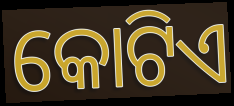
କୋଟିଏ